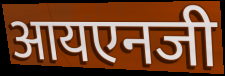
आयएनजी